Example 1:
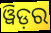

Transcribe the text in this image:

ୱିଡ଼ର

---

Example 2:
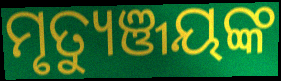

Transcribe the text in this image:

ମୃତ୍ୟୁଞ୍ଜୟଙ୍କ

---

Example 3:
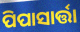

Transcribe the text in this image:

ପିପାସାର୍ତ୍ତା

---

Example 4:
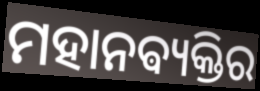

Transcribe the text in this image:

ମହାନଵ୍ୟକ୍ତିର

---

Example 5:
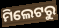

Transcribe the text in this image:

ମିଲେଟରୁ